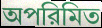
অপরিমিত